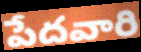
పేదవారి